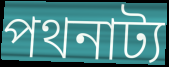
পথনাট্য